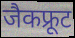
जैकफ्रूट